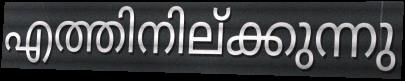
എത്തിനില്ക്കുന്നു